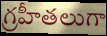
గ్రహీతలుగా